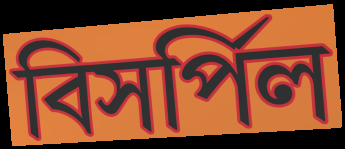
বিসর্পিল